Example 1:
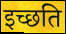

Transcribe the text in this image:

इच्छति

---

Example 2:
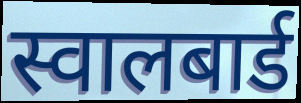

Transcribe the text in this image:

स्वालबार्ड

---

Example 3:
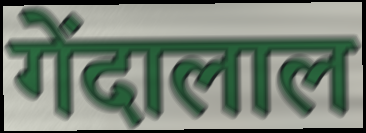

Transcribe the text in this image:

गेंदालाल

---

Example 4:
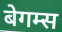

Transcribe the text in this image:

बेगम्स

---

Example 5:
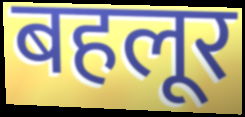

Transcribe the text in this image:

बहलूर